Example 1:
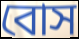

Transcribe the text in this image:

বোস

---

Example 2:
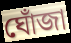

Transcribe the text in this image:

ঘোঁজা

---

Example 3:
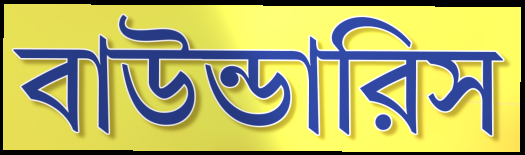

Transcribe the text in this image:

বাউন্ডারিস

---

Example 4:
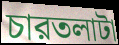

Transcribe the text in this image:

চারতলাটা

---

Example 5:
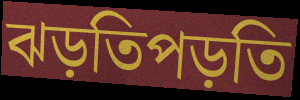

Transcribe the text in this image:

ঝড়তিপড়তি